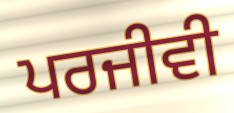
ਪਰਜੀਵੀ